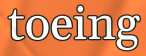
toeing